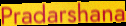
Pradarshana